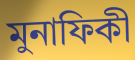
মুনাফিকী